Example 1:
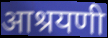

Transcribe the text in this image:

आश्रयणी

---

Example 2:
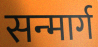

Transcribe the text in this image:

सन्‍मार्ग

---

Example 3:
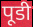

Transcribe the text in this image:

पूडी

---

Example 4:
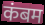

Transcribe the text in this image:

कंबम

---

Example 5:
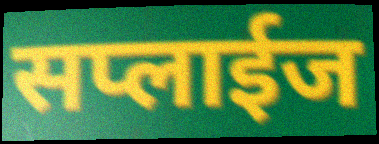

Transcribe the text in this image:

सप्लाईज